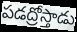
పడద్రోస్తాడు